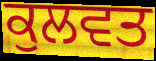
ਕੁਲਵਤ